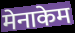
मेनाकेम